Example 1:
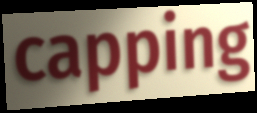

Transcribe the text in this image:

capping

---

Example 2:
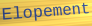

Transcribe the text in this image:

Elopement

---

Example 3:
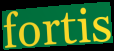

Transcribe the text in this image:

fortis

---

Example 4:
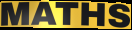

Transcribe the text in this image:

MATHS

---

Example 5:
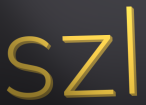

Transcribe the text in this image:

szl